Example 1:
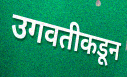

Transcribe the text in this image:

उगवतीकडून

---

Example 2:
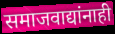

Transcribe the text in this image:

समाजवाद्यांनाही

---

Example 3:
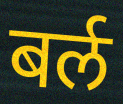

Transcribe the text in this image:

बर्ल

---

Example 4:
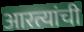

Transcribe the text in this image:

आरत्यांची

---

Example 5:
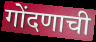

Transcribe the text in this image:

गोंदणाची